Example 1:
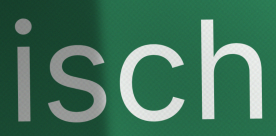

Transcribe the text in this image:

isch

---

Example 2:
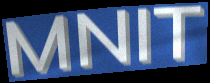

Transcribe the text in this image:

MNIT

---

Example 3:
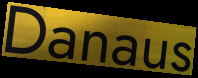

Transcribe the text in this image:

Danaus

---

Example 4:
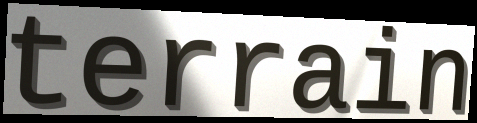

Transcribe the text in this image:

terrain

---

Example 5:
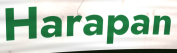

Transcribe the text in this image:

Harapan